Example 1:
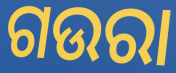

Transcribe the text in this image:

ଗଉରା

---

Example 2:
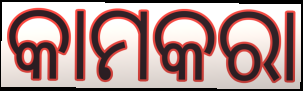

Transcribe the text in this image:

କାମକରା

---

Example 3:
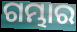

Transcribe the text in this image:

ଗମ୍ଭାର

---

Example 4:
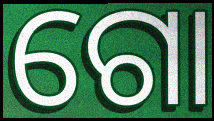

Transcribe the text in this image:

ଗୋ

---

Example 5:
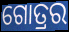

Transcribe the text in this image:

ଗୋତ୍ରର